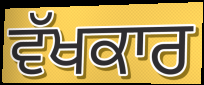
ਵੱਖਕਾਰ